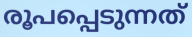
രൂപപ്പെടുന്നത്